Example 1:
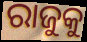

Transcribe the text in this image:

ରାଜୁକୁ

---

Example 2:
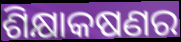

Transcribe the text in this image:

ଶିକ୍ଷାକଷଣର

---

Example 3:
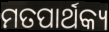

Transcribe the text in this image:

ମତପାର୍ଥକ୍ୟ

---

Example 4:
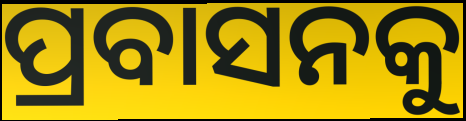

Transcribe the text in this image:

ପ୍ରବାସନକୁ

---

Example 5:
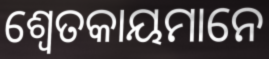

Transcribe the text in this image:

ଶ୍ୱେତକାୟମାନେ